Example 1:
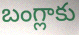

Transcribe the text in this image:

బంగ్లాకు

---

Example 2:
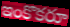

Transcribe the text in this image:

ఇంకొకరూ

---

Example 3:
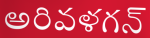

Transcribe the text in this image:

అరివళగన్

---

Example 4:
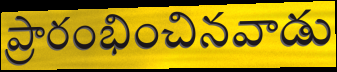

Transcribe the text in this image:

ప్రారంభించినవాడు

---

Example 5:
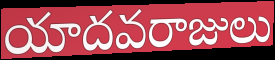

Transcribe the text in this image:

యాదవరాజులు